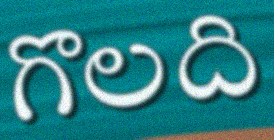
గొలది